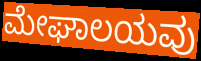
ಮೇಘಾಲಯವು